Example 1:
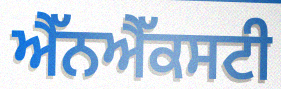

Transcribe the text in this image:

ਐੱਨਐੱਕਸਟੀ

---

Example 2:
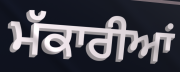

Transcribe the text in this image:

ਮੱਕਾਰੀਆਂ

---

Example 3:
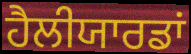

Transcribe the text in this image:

ਹੈਲੀਯਾਰਡਾਂ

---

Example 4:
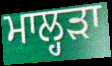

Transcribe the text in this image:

ਮਾਲ੍ਹੜਾ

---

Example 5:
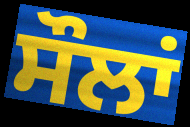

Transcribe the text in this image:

ਸੌਲਾਂ